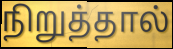
நிறுத்தால்